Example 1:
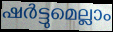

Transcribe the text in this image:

ഷർട്ടുമെല്ലാം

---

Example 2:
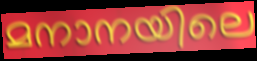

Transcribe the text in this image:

മനാനയിലെ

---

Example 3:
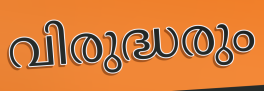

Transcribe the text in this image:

വിരുദ്ധരും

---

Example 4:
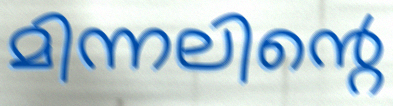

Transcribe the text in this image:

മിന്നലിന്റെ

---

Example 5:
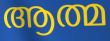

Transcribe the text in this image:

ആത്മ